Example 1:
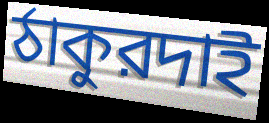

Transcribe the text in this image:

ঠাকুরদাই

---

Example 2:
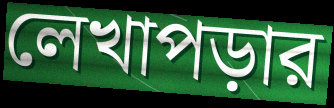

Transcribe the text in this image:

লেখাপড়ার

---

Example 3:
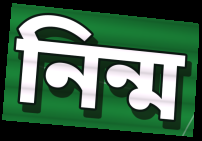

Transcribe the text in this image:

নিন্ম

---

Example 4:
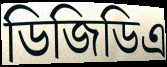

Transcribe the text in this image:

ডিজিডিএ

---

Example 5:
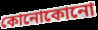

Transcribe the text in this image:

কোনোকোনো